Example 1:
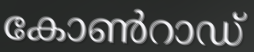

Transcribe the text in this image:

കോൺറാഡ്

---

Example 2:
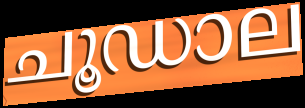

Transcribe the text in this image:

ചൂഡാല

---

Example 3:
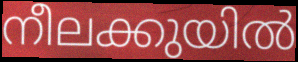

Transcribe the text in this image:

നീലക്കുയിൽ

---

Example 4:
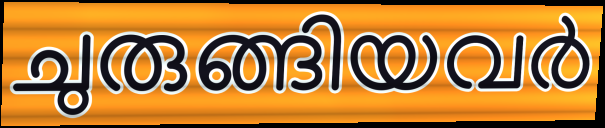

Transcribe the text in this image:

ചുരുങ്ങിയവർ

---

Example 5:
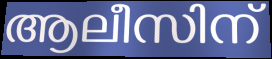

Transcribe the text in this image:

ആലീസിന്